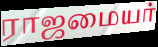
ராஜமையர்